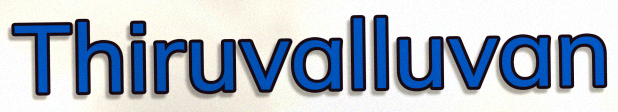
Thiruvalluvan